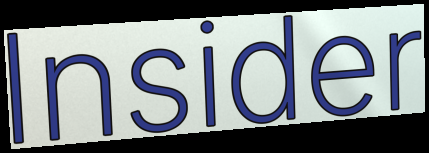
Insider